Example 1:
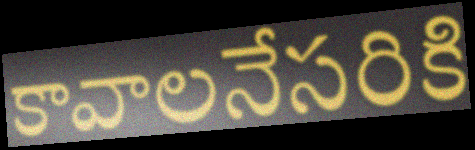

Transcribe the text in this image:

కావాలనేసరికి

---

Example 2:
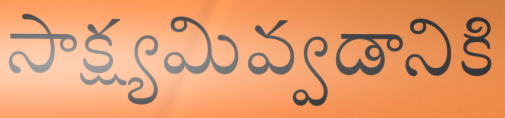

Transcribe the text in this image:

సాక్ష్యమివ్వడానికి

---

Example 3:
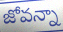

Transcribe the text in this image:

జోవన్నా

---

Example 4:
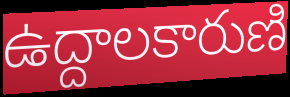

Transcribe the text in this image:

ఉద్దాలకారుణి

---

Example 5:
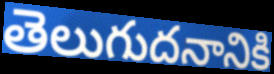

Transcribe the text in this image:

తెలుగుదనానికి